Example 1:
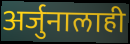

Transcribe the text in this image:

अर्जुनालाही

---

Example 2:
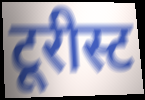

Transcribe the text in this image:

टूरीस्ट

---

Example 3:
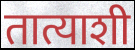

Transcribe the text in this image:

तात्याशी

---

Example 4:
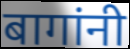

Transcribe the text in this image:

बागांनी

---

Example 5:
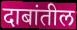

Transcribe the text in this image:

दाबांतील